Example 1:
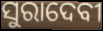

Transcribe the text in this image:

ସୁରାଦେବୀ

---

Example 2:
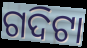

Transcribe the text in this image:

ଗଦିଟା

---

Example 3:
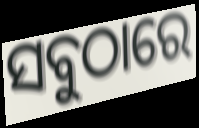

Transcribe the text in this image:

ସବୁଠାରେ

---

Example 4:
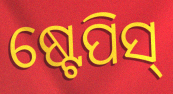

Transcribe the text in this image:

ଷ୍ଟେପିସ୍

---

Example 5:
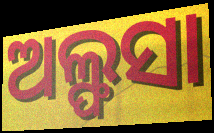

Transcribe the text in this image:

ଅଲ୍ଫସା